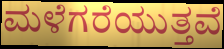
ಮಳೆಗರೆಯುತ್ತವೆ